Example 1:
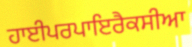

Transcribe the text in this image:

ਹਾਈਪਰਪਾਇਰੈਕਸੀਆ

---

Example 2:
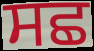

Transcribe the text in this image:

ਸਛ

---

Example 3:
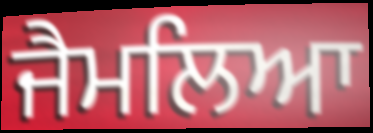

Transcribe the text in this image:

ਜੈਮਲਿਆ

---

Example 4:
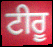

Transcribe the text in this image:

ਟੀਰੂ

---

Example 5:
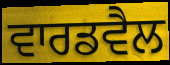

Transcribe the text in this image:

ਵਾਰਡਵੈਲ